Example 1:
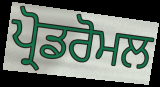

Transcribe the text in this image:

ਪ੍ਰੋਡਰੋਮਲ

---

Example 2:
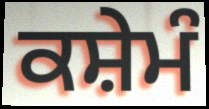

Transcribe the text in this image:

ਕਸ਼ੇਮੰ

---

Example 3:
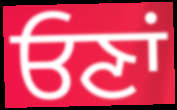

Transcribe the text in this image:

ਓਣਾਂ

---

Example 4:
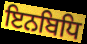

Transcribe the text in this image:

ਇਨਬਿਧਿ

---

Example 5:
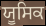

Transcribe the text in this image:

ਯੂਸਿਕ